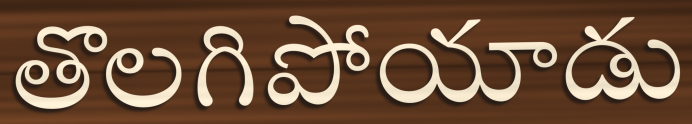
తొలగిపోయాడు